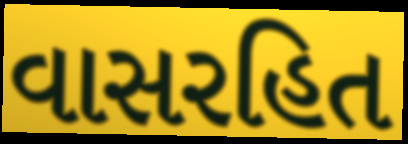
વાસરહિત